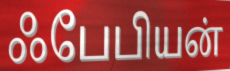
ஃபேபியன்